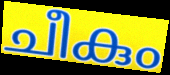
ചീകും